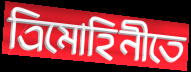
ত্রিমোহিনীতে